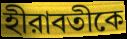
হীরাবতীকে